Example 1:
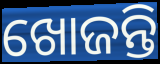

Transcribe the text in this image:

ଖୋଜନ୍ତି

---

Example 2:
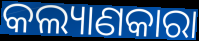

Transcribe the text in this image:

କଲ୍ୟାଣକାରା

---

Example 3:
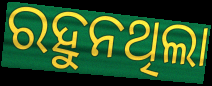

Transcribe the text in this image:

ରହୁନଥିଲା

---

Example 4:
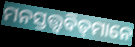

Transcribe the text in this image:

ମନସ୍ତତ୍ତ୍ୱବିତ୍‌ମାନେ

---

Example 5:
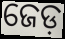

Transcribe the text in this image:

ଜେଡ଼